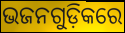
ଭଜନଗୁଡ଼ିକରେ